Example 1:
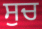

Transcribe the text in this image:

ਸੁਚ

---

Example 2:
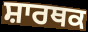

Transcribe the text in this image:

ਸ਼ਾਰਥਕ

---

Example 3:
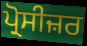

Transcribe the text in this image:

ਪ੍ਰੋਸੀਜ਼ਰ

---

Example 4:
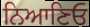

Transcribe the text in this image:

ਨਿਆਣਿਓ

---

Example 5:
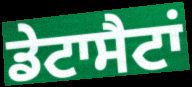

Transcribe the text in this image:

ਡੇਟਾਸੈਟਾਂ